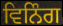
ਵਿਨਿੰਗ